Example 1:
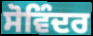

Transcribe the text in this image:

ਸੋਵਿੰਦਰ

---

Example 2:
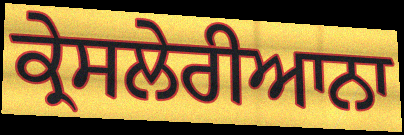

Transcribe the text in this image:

ਕ੍ਰੇਸਲੇਰੀਆਨਾ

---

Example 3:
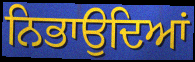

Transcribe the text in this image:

ਨਿਭਾਉਦਿਆਂ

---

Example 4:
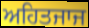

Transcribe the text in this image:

ਅਹਿਤਜਾਜ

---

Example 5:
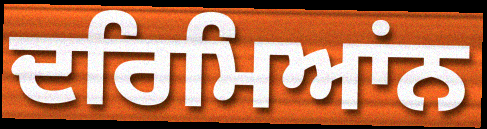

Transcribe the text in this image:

ਦਰਿਮਿਆਂਨ